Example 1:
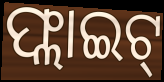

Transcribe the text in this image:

ଫ୍ଲାଇଟ୍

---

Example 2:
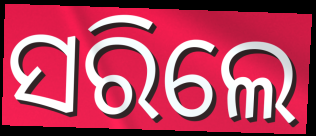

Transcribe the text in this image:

ସରିଲେ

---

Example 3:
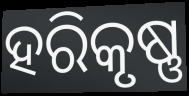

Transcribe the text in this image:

ହରିକୃଷ୍ଣ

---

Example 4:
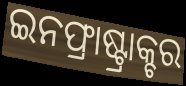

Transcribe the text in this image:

ଇନଫ୍ରାଷ୍ଟ୍ରାକ୍ଚର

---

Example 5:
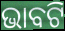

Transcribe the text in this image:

ଭାବଟି